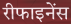
रीफाइनेंस